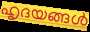
ഹൃദയങ്ങൾ